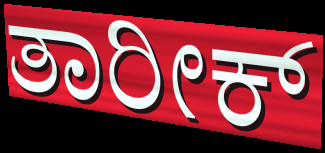
ತಾರೀಕ್